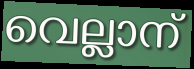
വെല്ലാന്